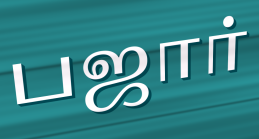
பஜார்